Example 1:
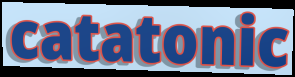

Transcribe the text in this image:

catatonic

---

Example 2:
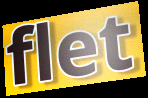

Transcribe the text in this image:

flet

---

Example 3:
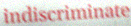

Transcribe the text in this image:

indiscriminate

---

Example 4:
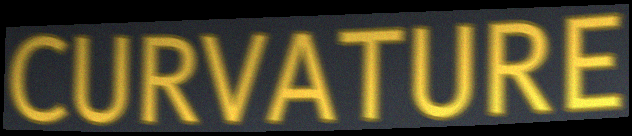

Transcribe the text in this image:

CURVATURE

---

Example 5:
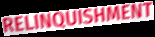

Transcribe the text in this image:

RELINQUISHMENT